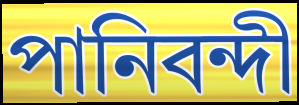
পানিবন্দী